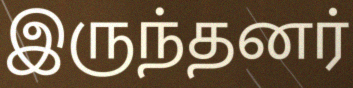
இருந்தனர்